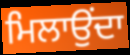
ਮਿਲਾਉਂਦਾ